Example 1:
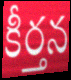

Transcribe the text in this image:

కీర్తన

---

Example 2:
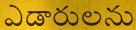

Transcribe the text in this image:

ఎడారులను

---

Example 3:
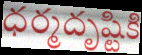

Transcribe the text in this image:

ధర్మదృష్టికి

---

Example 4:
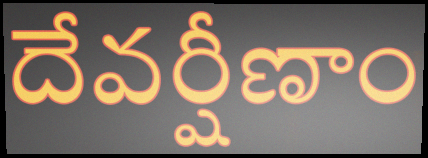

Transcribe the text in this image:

దేవర్షీణాం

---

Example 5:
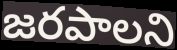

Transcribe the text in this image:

జరపాలని